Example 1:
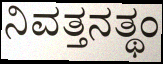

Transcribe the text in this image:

ನಿವತ್ತನತ್ಥಂ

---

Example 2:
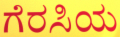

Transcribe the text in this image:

ಗೆರಸಿಯ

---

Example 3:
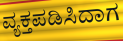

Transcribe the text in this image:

ವ್ಯಕ್ತಪಡಿಸಿದಾಗ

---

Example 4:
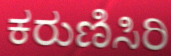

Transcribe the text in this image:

ಕರುಣಿಸಿರಿ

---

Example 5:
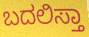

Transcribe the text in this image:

ಬದಲಿಸ್ತಾ